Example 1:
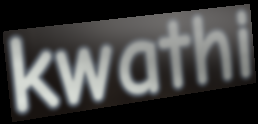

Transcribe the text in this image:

kwathi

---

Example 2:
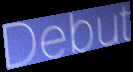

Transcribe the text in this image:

Debut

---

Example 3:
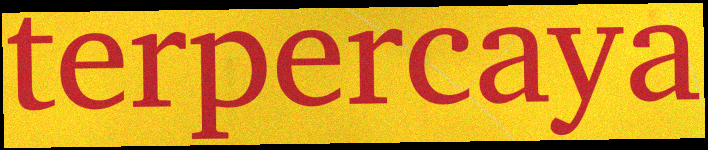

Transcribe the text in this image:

terpercaya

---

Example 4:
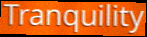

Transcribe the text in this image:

Tranquility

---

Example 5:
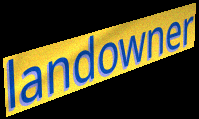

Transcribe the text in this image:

landowner